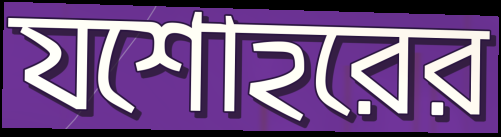
যশোহরের